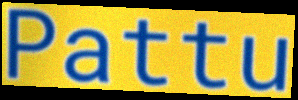
Pattu